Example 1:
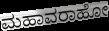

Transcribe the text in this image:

ಮಹಾವರಾಹೋ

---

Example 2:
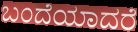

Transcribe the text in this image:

ಬಂದೆಯಾದರೆ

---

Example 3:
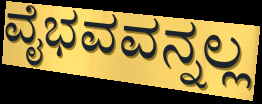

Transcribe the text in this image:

ವೈಭವವನ್ನಲ್ಲ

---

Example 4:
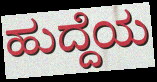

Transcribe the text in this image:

ಹುದ್ದೆಯ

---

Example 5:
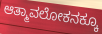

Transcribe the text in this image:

ಆತ್ಮಾವಲೋಕನಕ್ಕೂ